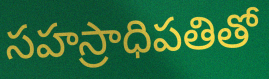
సహస్రాధిపతితో